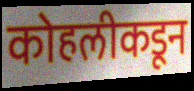
कोहलीकडून